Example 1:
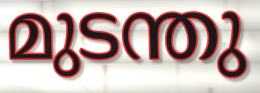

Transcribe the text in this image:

മുടന്തു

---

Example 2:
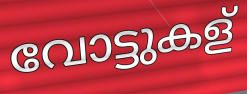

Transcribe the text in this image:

വോട്ടുകള്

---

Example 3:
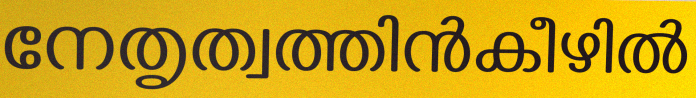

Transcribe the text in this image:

നേതൃത്വത്തിൻകീഴിൽ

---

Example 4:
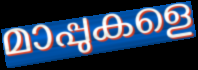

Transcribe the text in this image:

മാപ്പുകളെ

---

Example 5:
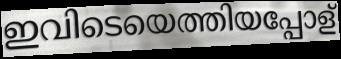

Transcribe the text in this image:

ഇവിടെയെത്തിയപ്പോള്